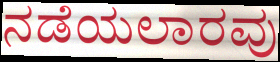
ನಡೆಯಲಾರವು